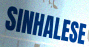
SINHALESE